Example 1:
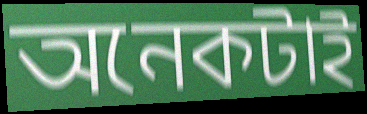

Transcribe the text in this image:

অনেকটাই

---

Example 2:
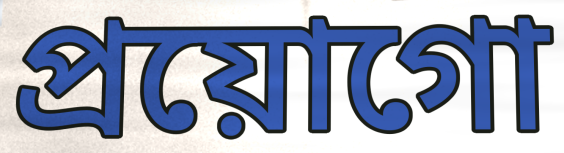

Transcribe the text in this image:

প্ৰয়োগো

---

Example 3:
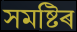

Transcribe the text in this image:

সমষ্টিৰ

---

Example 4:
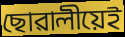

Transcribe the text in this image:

ছোৱালীয়েই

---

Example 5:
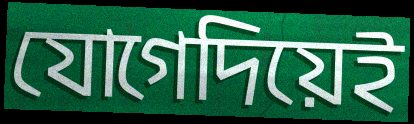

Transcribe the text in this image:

যোগেদিয়েই